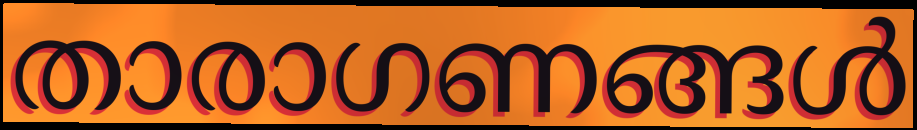
താരാഗണങ്ങൾ